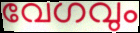
വേഗവും